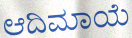
ಆದಿಮಾಯೆ